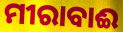
ମୀରାବାଈ